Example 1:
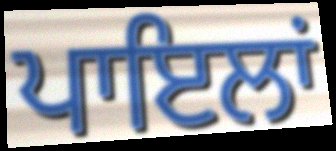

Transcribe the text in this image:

ਪਾਇਲਾਂ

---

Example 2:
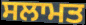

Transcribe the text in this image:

ਸਲਾਮਤ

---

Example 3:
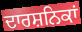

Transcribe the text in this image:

ਦਾਰਸ਼ਨਿਕਾਂ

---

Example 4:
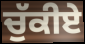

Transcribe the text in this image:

ਚੁੱਕੀਏ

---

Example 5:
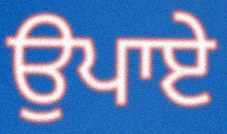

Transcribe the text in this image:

ਉਪਾਏ